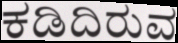
ಕಡಿದಿರುವ